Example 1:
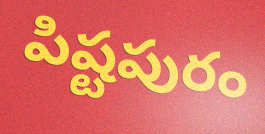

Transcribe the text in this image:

పిష్టపురం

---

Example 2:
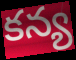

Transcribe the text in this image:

కన్య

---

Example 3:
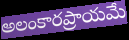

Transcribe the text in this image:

అలంకారప్రాయమే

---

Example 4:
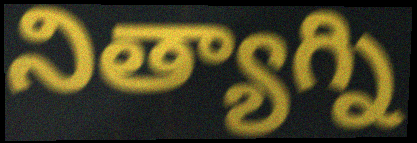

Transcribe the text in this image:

నిత్యాగ్ని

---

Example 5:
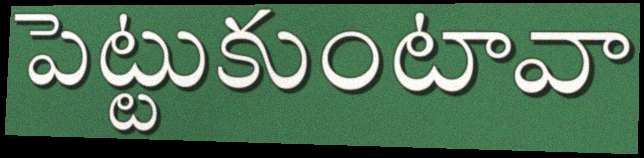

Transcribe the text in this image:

పెట్టుకుంటావా